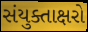
સંયુક્તાક્ષરો